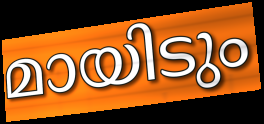
മായിടും